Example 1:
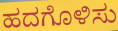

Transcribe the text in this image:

ಹದಗೊಳಿಸು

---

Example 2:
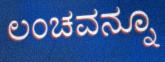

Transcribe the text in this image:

ಲಂಚವನ್ನೂ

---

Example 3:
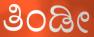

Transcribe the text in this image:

ತಿಂಡೀ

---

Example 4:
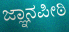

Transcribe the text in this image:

ಜ್ಞಾನಪೀಠಿ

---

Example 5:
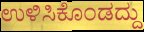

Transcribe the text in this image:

ಉಳಿಸಿಕೊಂಡದ್ದು